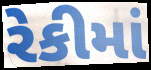
રેકીમાં